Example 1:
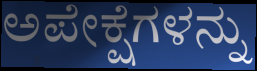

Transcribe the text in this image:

ಅಪೇಕ್ಷೆಗಳನ್ನು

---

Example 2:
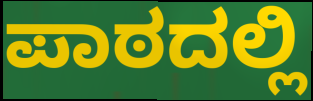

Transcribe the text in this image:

ಪಾಠದಲ್ಲಿ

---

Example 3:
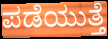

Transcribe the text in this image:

ಪಡೆಯುತ್ತೆ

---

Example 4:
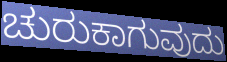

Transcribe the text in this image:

ಚುರುಕಾಗುವುದು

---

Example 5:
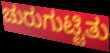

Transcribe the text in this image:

ಚುರುಗುಟ್ಟಿತು